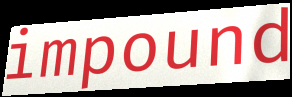
impound